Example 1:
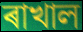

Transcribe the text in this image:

ৰাখাল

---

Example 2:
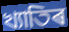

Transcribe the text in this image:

খ্যাতিৰ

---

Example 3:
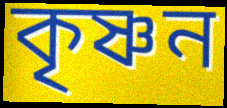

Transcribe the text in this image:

কৃষ্ণন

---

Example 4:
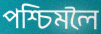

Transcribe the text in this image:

পশ্চিমলৈ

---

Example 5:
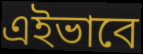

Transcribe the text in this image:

এইভাবে